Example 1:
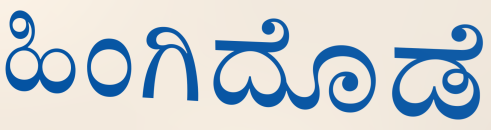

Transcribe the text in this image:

ಹಿಂಗಿದೊಡೆ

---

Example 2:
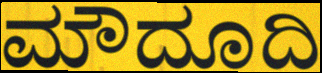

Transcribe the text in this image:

ಮೌದೂದಿ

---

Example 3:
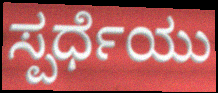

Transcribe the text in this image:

ಸ್ಪರ್ಧೆಯು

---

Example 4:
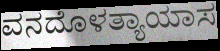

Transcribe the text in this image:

ವನದೊಳತ್ಯಾಯಾಸ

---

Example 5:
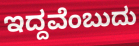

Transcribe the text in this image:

ಇದ್ದವೆಂಬುದು